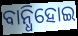
ବାନ୍ଧିହୋଇ